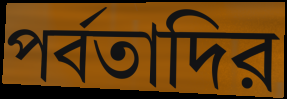
পর্বতাদির